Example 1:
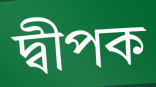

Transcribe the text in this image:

দ্বীপক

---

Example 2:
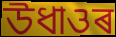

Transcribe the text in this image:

উধাওৰ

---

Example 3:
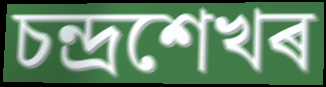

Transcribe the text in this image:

চন্দ্ৰশেখৰ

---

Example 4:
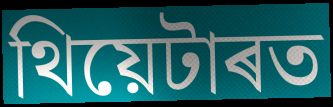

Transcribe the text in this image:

থিয়েটাৰত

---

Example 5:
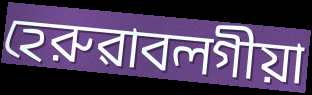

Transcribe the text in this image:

হেৰুৱাবলগীয়া